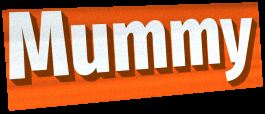
Mummy